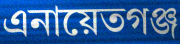
এনায়েতগঞ্জ